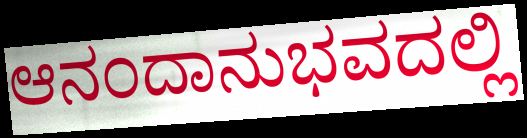
ಆನಂದಾನುಭವದಲ್ಲಿ